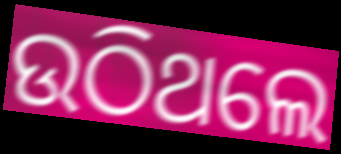
ଉଠିଥଲେ